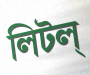
লিটল্